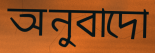
অনুবাদো